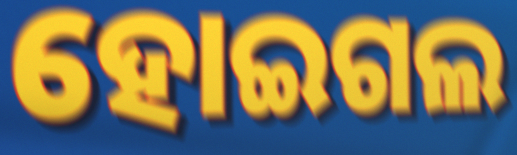
ହୋଇଗଲ